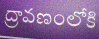
ద్రావణంలోకి